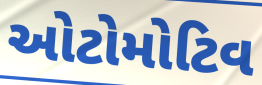
ઓટોમોટિવ